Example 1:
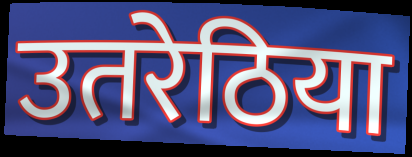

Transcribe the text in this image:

उतरेठिया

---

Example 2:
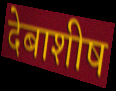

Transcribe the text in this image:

देबाशीष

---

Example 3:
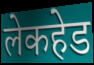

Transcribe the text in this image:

लेकहेड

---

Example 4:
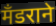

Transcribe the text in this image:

मँडराने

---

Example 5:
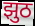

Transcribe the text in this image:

झुठ